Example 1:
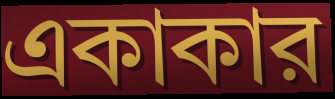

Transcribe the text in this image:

একাকার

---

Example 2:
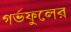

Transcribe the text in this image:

গর্ভফুলের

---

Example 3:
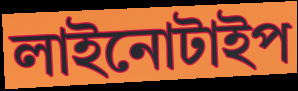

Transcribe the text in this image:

লাইনোটাইপ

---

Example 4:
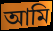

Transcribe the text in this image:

আমি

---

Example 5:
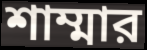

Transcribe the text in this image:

শাম্মার